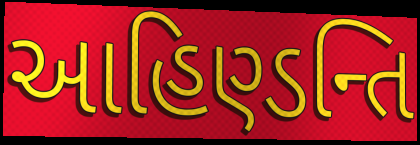
આહિણ્ડન્તિ